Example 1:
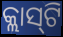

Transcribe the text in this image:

କ୍ଲାସ୍‍ଟି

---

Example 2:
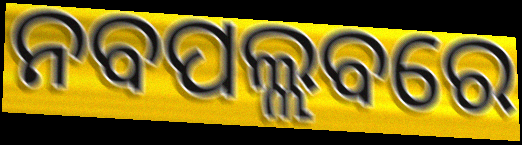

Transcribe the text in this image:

ନବପଲ୍ଲବରେ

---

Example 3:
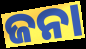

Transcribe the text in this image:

ଜନା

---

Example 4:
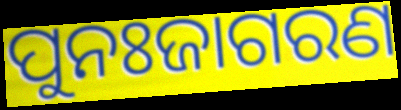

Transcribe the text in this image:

ପୁନଃଜାଗରଣ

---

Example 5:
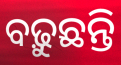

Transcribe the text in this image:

ବଢ଼ୁଛନ୍ତି